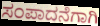
ಸಂಪಾದನೆಗಾಗಿ